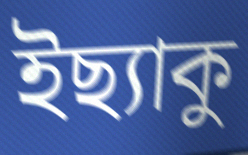
ইছ্যাকু